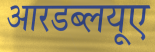
आरडब्लयूए